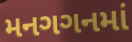
મનગગનમાં